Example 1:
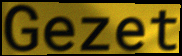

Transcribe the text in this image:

Gezet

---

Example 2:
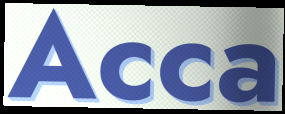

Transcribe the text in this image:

Acca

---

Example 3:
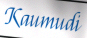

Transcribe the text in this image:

Kaumudi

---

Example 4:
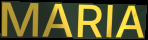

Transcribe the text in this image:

MARIA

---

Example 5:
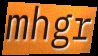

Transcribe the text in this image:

mhgr